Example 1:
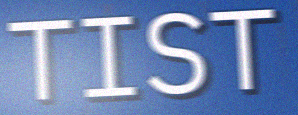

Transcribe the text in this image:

TIST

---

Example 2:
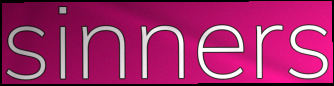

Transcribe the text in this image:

sinners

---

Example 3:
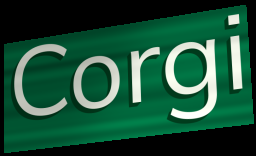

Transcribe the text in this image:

Corgi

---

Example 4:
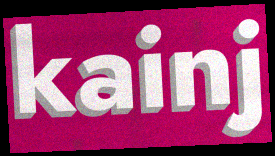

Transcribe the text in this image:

kainj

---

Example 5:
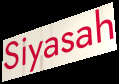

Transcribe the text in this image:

Siyasah